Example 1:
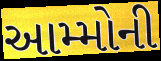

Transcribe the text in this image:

આમ્મોની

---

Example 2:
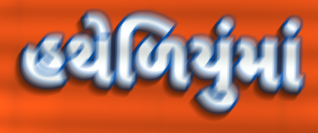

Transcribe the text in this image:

હથેળિયુંમાં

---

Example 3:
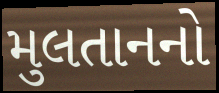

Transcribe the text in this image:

મુલતાનનો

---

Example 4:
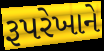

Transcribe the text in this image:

રૂપરેખાને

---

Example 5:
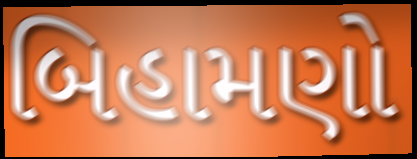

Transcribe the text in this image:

બિહામણો